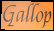
Gallop